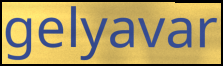
gelyavar